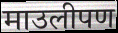
माउलीपण